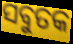
ସବୁତକ